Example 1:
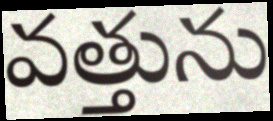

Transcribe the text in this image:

వత్తును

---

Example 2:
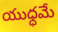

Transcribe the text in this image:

యుధ్ధమే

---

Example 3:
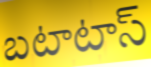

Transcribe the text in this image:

బటాటాస్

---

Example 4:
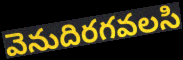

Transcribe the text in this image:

వెనుదిరగవలసి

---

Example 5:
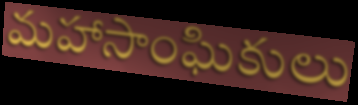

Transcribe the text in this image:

మహాసాంఘికులు